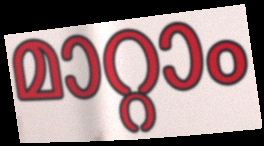
മാറ്റാം